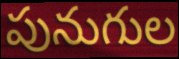
పునుగుల